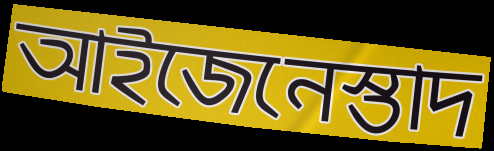
আইজেনেস্তাদ